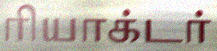
ரியாக்டர்